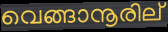
വെങ്ങാനൂരില്